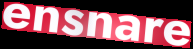
ensnare